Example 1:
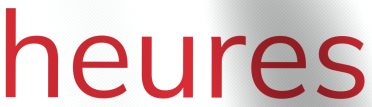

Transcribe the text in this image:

heures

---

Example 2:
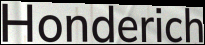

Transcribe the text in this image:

Honderich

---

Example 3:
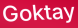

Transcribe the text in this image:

Goktay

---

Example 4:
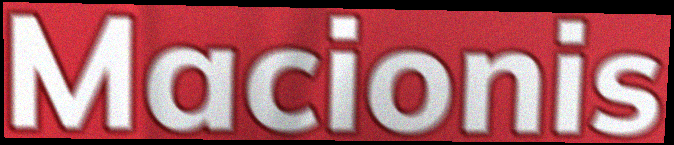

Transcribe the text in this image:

Macionis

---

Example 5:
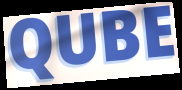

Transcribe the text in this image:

QUBE